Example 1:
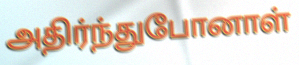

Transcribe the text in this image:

அதிர்ந்துபோனாள்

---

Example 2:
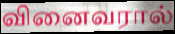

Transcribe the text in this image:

வினைவரால்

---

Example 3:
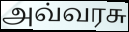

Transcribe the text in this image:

அவ்வரசு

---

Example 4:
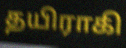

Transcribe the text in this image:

தயிராகி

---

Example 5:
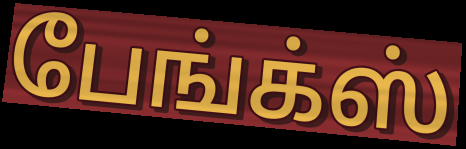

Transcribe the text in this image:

பேங்க்ஸ்